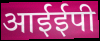
आईईपी